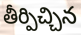
తీర్పిచ్చిన